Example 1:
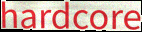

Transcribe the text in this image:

hardcore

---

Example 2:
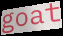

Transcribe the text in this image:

goat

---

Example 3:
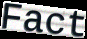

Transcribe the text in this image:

Fact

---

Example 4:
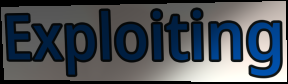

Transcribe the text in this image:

Exploiting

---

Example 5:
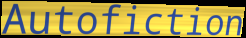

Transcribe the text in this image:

Autofiction